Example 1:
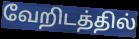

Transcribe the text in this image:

வேறிடத்தில்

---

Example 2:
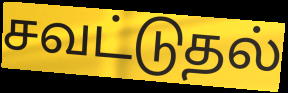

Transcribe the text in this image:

சவட்டுதல்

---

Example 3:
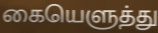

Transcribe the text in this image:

கையெளுத்து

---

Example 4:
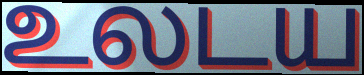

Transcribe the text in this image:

உலடய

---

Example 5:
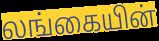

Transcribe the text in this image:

லங்கையின்